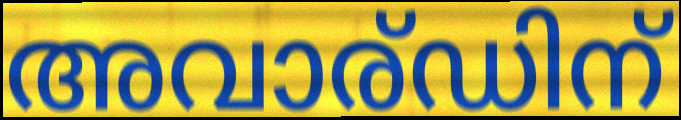
അവാര്ഡിന്